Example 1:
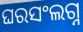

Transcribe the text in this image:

ଘରସଂଲଗ୍ନ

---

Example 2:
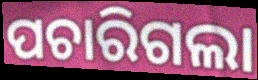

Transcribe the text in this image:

ପଚାରିଗଲା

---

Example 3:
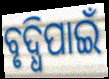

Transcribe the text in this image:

ବୃଦ୍ଧିପାଇଁ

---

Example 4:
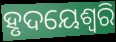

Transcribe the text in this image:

ହୃଦୟେଶ୍ଵରି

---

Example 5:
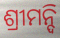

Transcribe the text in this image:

ଶ୍ରୀମନ୍ଦି